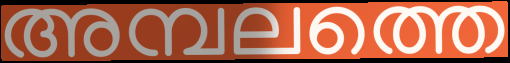
അമ്പലത്തെ